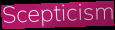
Scepticism